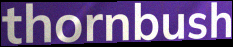
thornbush